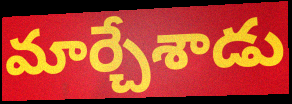
మార్చేశాడు